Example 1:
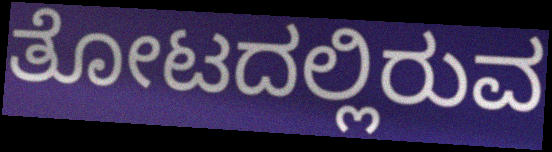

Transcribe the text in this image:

ತೋಟದಲ್ಲಿರುವ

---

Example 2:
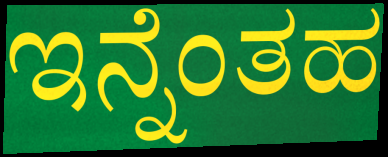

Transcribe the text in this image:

ಇನ್ನೆಂತಹ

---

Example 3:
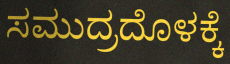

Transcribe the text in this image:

ಸಮುದ್ರದೊಳಕ್ಕೆ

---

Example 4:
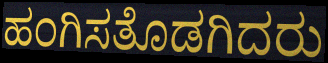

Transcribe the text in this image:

ಹಂಗಿಸತೊಡಗಿದರು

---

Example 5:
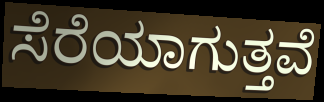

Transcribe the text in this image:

ಸೆರೆಯಾಗುತ್ತವೆ